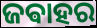
ଜଵାହର